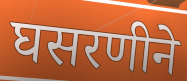
घसरणीने